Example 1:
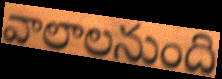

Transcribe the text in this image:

వాలాలనుంది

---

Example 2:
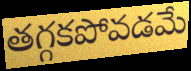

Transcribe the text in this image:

తగ్గకపోవడమే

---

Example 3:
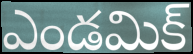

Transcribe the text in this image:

ఎండమిక్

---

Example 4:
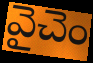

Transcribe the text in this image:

వైచెం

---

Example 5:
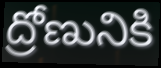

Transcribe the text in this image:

ద్రోణునికి